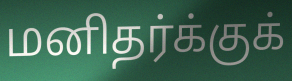
மனிதர்க்குக்